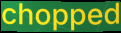
chopped